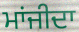
ਮਾਂਜੀਦਾ